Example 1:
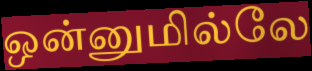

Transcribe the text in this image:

ஒன்னுமில்லே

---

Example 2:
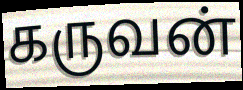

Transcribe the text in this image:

கருவன்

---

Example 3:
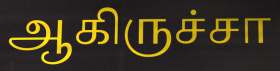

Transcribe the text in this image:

ஆகிருச்சா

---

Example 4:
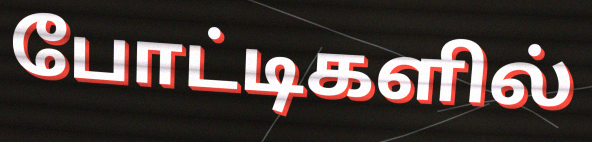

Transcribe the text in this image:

போட்டிகளில்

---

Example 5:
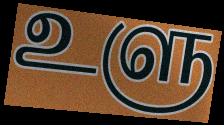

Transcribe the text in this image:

உளு